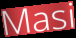
Masi